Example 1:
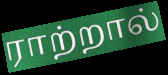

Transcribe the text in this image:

ராற்றால்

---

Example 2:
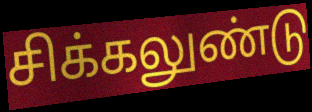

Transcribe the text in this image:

சிக்கலுண்டு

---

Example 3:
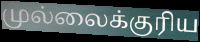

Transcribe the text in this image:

முல்லைக்குரிய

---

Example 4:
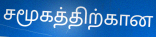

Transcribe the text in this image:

சமூகத்திற்கான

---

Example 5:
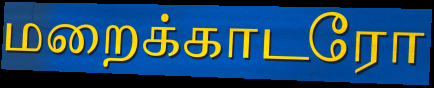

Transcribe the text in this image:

மறைக்காடரோ